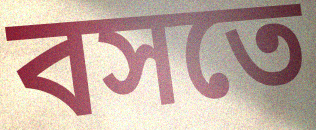
বসতে